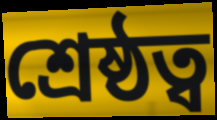
শ্ৰেষ্ঠত্ব